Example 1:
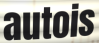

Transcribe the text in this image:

autois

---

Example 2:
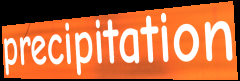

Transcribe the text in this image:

precipitation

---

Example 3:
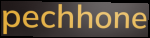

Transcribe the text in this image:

pechhone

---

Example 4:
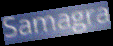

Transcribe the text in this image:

Samagra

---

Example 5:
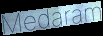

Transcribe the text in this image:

Medaram